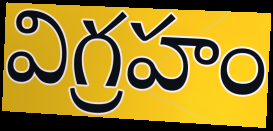
విగ్రహం